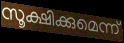
സൂക്ഷിക്കുമെന്ന്